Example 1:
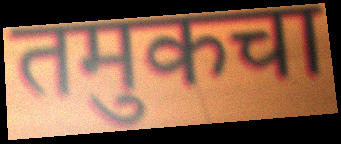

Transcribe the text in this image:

तमुकचा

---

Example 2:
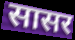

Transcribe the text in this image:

सासर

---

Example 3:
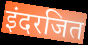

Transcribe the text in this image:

इंदरजित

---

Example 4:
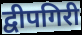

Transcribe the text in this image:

द्वीपगिरी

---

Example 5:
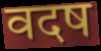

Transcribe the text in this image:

वदष